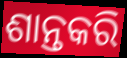
ଶାନ୍ତକରି